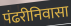
पंढरीनिवासा